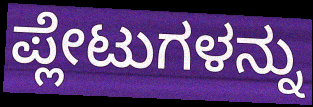
ಪ್ಲೇಟುಗಳನ್ನು